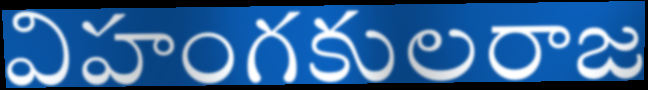
విహంగకులరాజ